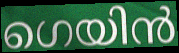
ഗെയിൻ